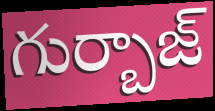
గుర్బాజ్